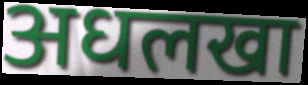
अधलखा